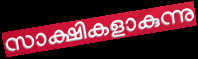
സാക്ഷികളാകുന്നു